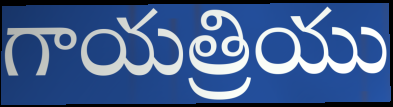
గాయత్రియు